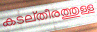
കടല്തീരത്തുള്ള